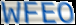
WFEO